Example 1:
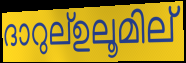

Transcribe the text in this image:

ദാറുല്ഉലൂമില്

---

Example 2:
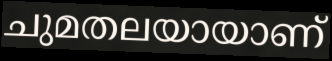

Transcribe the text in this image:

ചുമതലയായാണ്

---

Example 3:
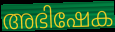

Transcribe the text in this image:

അഭിഷേക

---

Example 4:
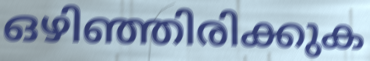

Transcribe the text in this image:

ഒഴിഞ്ഞിരിക്കുക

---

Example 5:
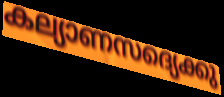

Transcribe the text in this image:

കല്യാണസദ്യെക്കു